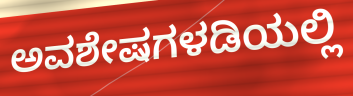
ಅವಶೇಷಗಳಡಿಯಲ್ಲಿ